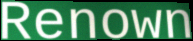
Renown